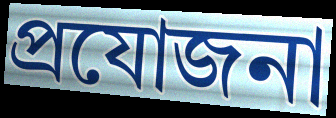
প্রযোজনা